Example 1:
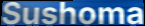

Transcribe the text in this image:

Sushoma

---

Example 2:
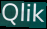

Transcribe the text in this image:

Qlik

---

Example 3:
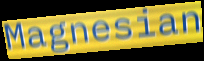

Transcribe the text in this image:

Magnesian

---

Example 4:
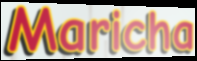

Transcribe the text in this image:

Maricha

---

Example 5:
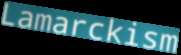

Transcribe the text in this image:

Lamarckism